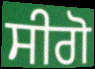
ਸੀਗੋ